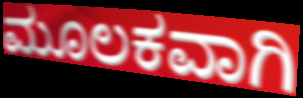
ಮೂಲಕವಾಗಿ